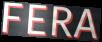
FERA